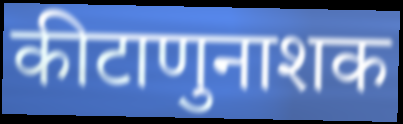
कीटाणुनाशक